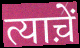
त्याच़ें